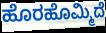
ಹೊರಹೊಮ್ಮಿದೆ